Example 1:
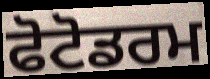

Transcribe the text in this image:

ਫੋਟੋਡਰਮ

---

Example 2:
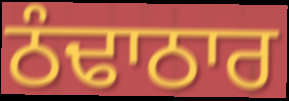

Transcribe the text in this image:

ਠੰਢਾਠਾਰ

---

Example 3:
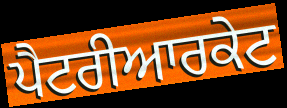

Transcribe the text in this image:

ਪੈਟਰੀਆਰਕੇਟ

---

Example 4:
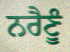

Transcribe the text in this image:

ਨਰੈਣੂੰ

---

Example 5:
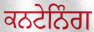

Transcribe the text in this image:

ਕਨਟੇਨਿੰਗ